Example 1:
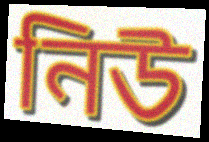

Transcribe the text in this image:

নিউ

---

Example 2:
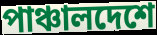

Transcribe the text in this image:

পাঞ্চালদেশে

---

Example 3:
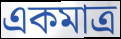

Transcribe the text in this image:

একমাত্র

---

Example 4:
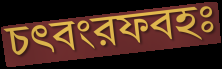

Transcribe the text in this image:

চৎবংরফবহঃ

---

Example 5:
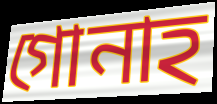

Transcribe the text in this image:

গোনাহ